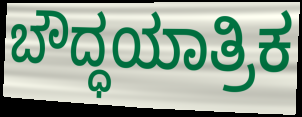
ಬೌದ್ಧಯಾತ್ರಿಕ